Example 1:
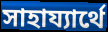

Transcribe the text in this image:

সাহায্যাৰ্থে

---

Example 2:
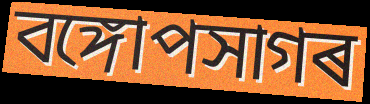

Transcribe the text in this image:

বঙ্গোপসাগৰ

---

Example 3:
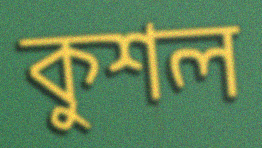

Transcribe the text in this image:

কুশল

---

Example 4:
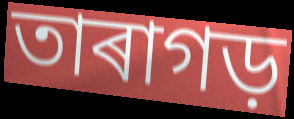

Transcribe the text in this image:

তাৰাগড়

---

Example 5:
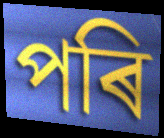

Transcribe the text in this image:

পৰি